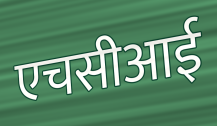
एचसीआई